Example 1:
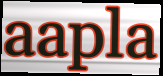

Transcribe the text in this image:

aapla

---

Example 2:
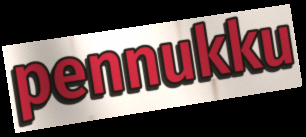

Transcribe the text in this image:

pennukku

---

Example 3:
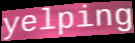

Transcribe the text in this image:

yelping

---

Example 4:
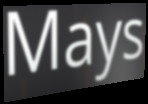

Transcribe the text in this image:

Mays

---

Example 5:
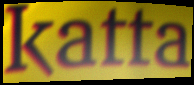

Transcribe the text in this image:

katta